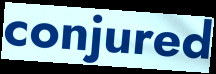
conjured